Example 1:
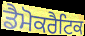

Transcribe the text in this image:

ਡੈਮੋਕਰੈਟਿਕ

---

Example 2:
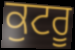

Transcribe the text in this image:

ਕੁਟਰੂ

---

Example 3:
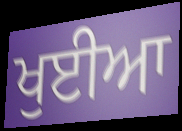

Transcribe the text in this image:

ਖੁਈਆ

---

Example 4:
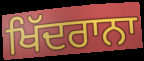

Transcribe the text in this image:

ਖਿੱਦਰਾਨਾ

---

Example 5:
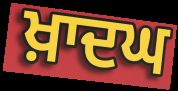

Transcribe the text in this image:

ਖ਼ਾਦਘ